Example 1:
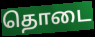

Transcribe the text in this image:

தொடை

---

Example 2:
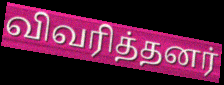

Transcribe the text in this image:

விவரித்தனர்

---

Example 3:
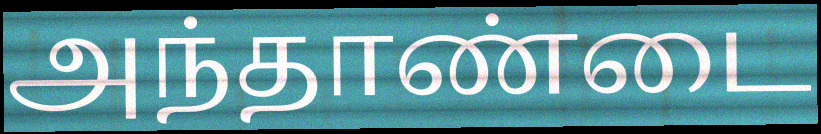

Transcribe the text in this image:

அந்தாண்டை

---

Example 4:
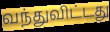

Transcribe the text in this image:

வந்துவிட்டது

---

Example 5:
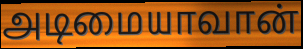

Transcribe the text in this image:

அடிமையாவான்